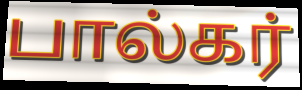
பால்கர்